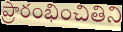
ప్రారంభించితిని